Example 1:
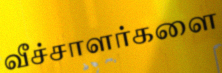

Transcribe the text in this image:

வீச்சாளர்களை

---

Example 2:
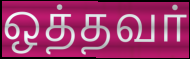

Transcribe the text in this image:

ஒத்தவர்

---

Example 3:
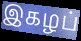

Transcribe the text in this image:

இகழப்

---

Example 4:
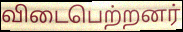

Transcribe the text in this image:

விடைபெற்றனர்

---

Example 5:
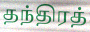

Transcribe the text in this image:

தந்திரத்